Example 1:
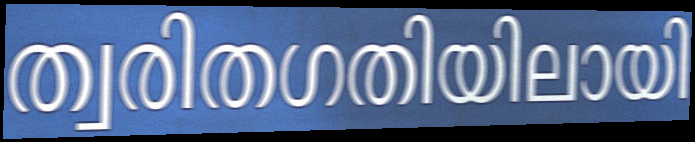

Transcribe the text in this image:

ത്വരിതഗതിയിലായി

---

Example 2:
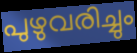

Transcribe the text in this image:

പുഴുവരിച്ചും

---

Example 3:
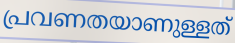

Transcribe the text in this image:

പ്രവണതയാണുള്ളത്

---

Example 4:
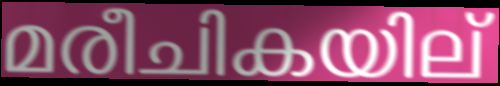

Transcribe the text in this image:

മരീചികയില്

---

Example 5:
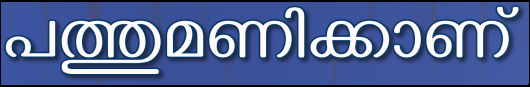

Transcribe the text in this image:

പത്തുമണിക്കാണ്